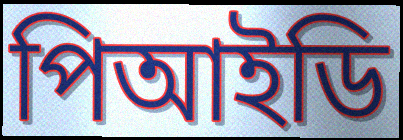
পিআইডি